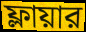
ফ্লায়ার